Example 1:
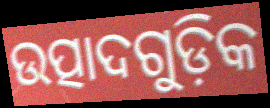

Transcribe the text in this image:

ଉତ୍ପାଦଗୁଡ଼ିକ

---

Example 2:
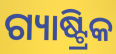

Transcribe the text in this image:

ଗ୍ୟାଷ୍ଟ୍ରିକ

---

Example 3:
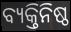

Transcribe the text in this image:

ବ୍ୟକ୍ତିନିଷ୍ଠ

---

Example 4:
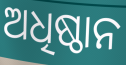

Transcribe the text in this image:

ଅଧିଷ୍ଠାନ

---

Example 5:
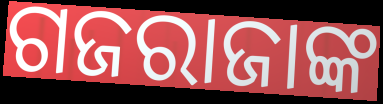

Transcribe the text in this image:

ଗଜରାଜାଙ୍କ